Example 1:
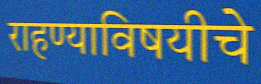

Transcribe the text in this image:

राहण्याविषयीचे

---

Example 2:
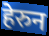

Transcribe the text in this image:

हेरुन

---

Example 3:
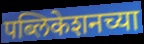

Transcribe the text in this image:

पब्लिकेशनच्या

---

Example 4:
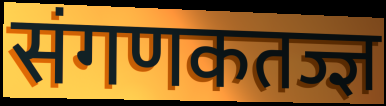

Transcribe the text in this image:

संगणकतज्ज्ञ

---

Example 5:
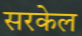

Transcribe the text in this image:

सरकेल